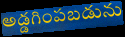
అడ్డగింపబడును